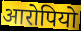
आरोपियो